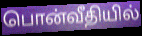
பொன்வீதியில்